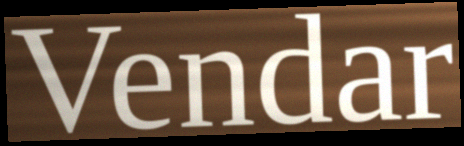
Vendar